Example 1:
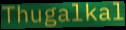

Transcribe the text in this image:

Thugalkal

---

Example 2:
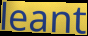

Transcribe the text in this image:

leant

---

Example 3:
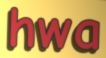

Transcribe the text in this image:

hwa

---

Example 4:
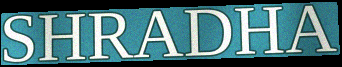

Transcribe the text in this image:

SHRADHA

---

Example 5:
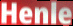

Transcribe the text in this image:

Henle